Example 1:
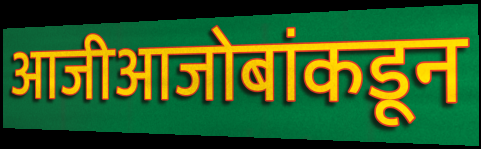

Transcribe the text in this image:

आजीआजोबांकडून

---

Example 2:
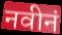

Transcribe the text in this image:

नवीनं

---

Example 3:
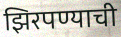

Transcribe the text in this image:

झिरपण्याची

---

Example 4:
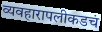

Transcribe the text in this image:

व्यवहारापलीकडचं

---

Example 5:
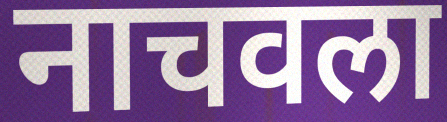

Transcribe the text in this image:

नाचवला